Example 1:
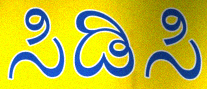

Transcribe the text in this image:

ಸಿಡಿಸಿ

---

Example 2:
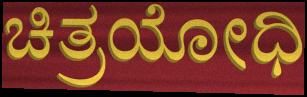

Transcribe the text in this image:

ಚಿತ್ರಯೋಧಿ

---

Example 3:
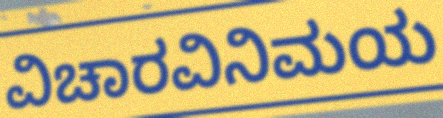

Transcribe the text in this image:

ವಿಚಾರವಿನಿಮಯ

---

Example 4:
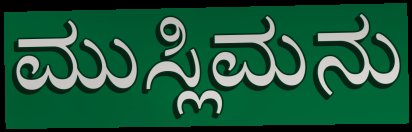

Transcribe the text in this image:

ಮುಸ್ಲಿಮನು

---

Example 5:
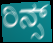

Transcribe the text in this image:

ರಿನ್ಸ್